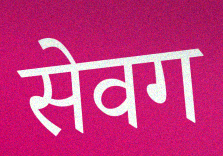
सेवग